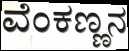
ವೆಂಕಣ್ಣನ